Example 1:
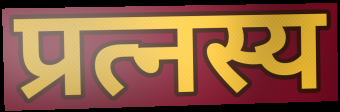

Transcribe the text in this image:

प्रत्नस्य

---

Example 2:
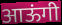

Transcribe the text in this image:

आऊंगी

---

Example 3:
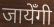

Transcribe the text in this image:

जायेँगी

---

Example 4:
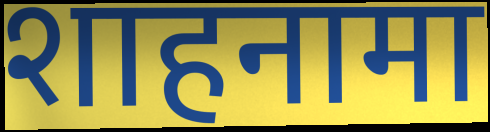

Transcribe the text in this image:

शाहनामा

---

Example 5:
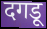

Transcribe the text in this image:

दगडू